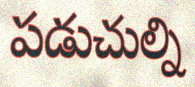
పడుచుల్ని